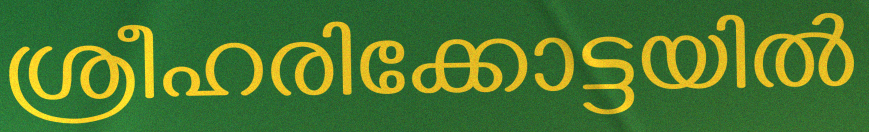
ശ്രീഹരിക്കോട്ടയിൽ